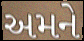
અમને